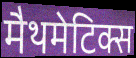
मैथमेटिक्स